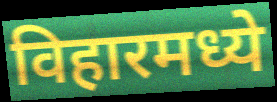
विहारमध्ये